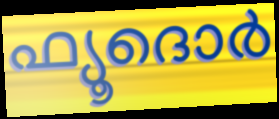
ഫ്യൂദൊർ